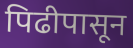
पिढीपासून